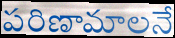
పరిణామాలనే